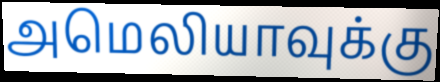
அமெலியாவுக்கு